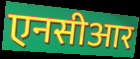
एनसीआर